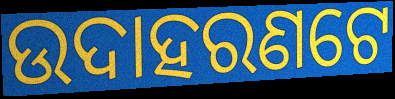
ଉଦାହରଣଟେ